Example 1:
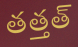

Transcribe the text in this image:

తత్తత్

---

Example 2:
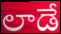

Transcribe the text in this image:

లాడే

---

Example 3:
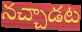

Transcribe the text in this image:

నచ్చాడట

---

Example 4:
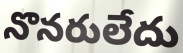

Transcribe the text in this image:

నొనరులేదు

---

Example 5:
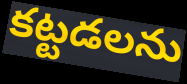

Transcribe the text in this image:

కట్టడలను